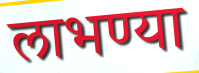
लाभण्या